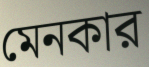
মেনকার